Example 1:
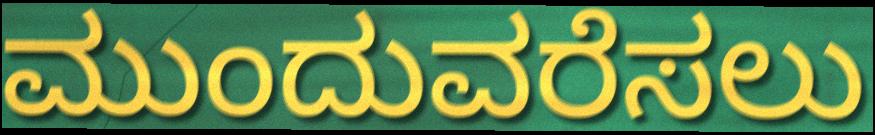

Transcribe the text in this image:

ಮುಂದುವರೆಸಲು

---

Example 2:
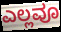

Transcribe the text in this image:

ಎಲ್ಲವೂ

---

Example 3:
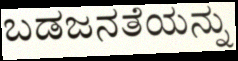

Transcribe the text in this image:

ಬಡಜನತೆಯನ್ನು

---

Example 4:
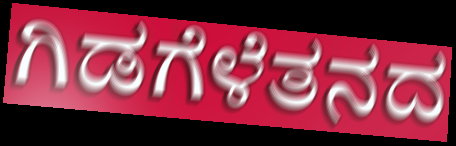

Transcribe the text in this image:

ಗಿಡಗೆಳೆತನದ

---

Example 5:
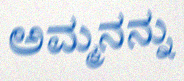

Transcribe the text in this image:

ಅಮ್ಮನನ್ನು